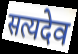
सत्यदेव